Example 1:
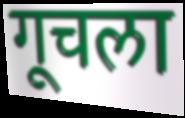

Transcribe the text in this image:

गूचला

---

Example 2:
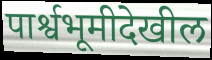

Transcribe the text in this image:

पार्श्वभूमीदेखील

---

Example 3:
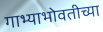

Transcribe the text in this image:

गाभ्याभोवतीच्या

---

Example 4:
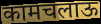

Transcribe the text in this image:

कामचलाऊ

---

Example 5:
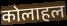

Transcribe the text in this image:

कोलाहल